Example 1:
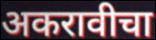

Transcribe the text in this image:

अकरावीचा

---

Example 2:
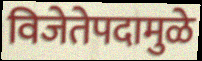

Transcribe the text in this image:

विजेतेपदामुळे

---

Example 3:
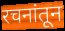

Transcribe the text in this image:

रचनांतून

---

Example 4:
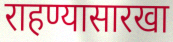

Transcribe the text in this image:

राहण्यासारखा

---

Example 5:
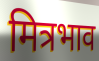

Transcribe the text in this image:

मित्रभाव